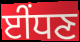
ਈਂਧਣ